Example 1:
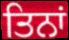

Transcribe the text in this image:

ਤਿਨਾਂ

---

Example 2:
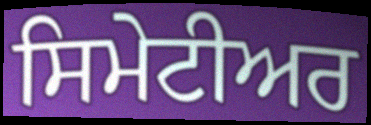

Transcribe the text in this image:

ਸਿਮੇਟੀਅਰ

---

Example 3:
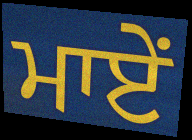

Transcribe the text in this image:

ਮਾਏਂ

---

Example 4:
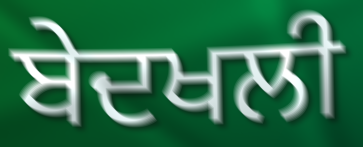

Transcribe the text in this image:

ਬੇਦਖਲੀ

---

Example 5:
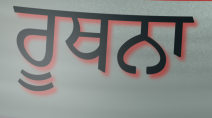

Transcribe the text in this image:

ਰੂਥਨਾ